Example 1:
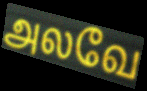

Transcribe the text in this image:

அலவே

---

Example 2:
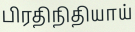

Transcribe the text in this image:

பிரதிநிதியாய்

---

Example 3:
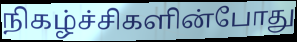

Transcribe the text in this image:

நிகழ்ச்சிகளின்போது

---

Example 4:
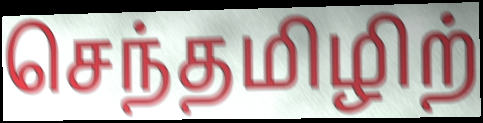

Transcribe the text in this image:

செந்தமிழிற்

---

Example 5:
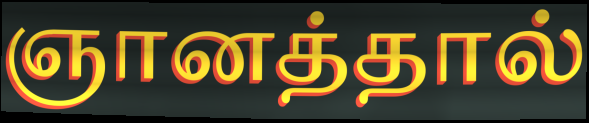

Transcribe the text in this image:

ஞானத்தால்